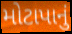
મોટાપાનું